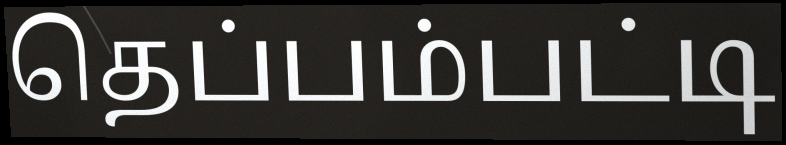
தெப்பம்பட்டி